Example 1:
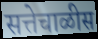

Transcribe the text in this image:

सत्तेचाळीस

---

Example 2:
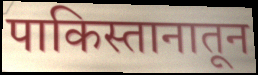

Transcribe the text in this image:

पाकिस्तानातून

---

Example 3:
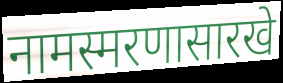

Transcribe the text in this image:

नामस्मरणासारखे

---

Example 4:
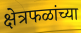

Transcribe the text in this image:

क्षेत्रफळांच्या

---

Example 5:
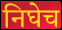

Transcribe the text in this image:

निघेच